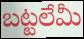
బట్టలేమీ